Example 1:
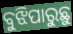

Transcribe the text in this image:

ବୁଝିପାରୁଛୁ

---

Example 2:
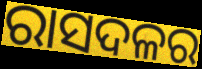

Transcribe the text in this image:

ରାସଦଳର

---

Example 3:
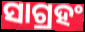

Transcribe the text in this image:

ସାଗ୍ରହଂ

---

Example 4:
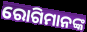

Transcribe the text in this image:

ରୋଗିମାନଙ୍କ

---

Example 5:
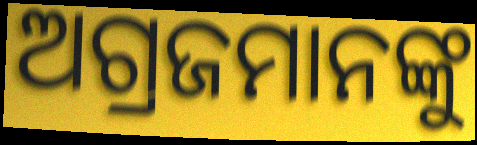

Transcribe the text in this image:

ଅଗ୍ରଜମାନଙ୍କୁ